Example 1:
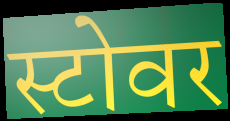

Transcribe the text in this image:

स्टोवर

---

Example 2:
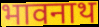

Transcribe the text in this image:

भावनाथ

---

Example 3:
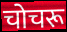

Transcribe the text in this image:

चोचरू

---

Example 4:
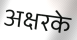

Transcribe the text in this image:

अक्षरके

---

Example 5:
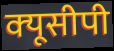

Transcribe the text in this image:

क्यूसीपी